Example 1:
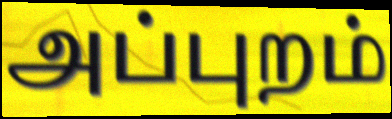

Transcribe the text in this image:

அப்புறம்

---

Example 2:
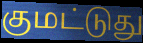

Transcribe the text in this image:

குமட்டுது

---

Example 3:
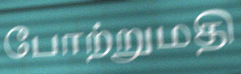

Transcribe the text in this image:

போற்றுமதி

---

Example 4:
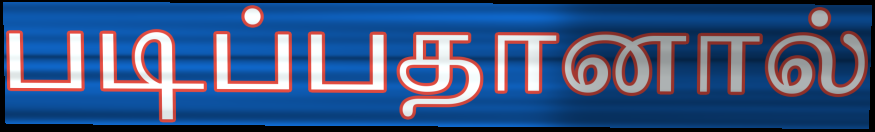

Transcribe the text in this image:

படிப்பதானால்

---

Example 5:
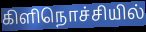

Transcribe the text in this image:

கிளிநொச்சியில்